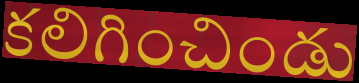
కలిగించిండు